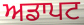
ਅਡਾਪਟ